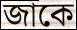
জাকে